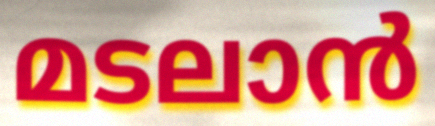
മടലാൻ